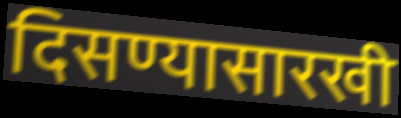
दिसण्यासारखी